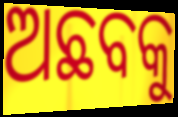
ଅଛବକୁ